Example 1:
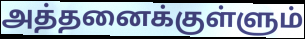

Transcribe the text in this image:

அத்தனைக்குள்ளும்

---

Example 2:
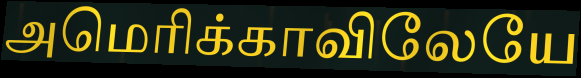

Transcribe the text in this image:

அமெரிக்காவிலேயே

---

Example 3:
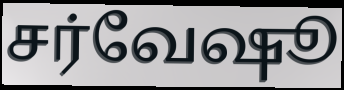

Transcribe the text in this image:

சர்வேஷூ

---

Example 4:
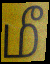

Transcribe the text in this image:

மீ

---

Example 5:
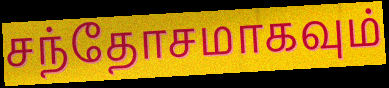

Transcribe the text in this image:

சந்தோசமாகவும்